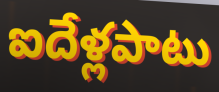
ఐదేళ్లపాటు